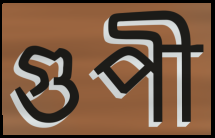
গুপী